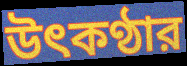
উৎকণ্ঠার